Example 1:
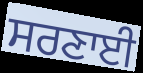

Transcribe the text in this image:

ਸਰਣਾਈ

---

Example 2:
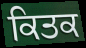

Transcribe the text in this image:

ਕਿਤਕ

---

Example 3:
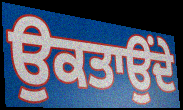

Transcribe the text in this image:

ਉਕਤਾਉਂਦੇ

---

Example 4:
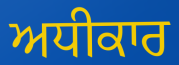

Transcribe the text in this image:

ਅਧੀਕਾਰ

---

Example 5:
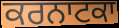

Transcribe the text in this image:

ਕਰਨਾਟਕਾ